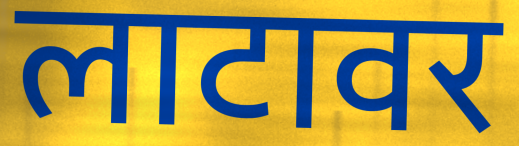
लाटावर